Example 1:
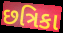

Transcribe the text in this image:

છત્રિકા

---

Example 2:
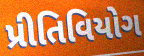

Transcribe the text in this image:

પ્રીતિવિયોગ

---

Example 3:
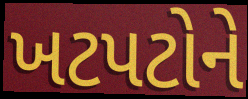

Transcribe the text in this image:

ખટપટોને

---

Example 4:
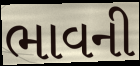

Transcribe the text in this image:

ભાવની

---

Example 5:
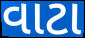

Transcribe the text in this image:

વાટા